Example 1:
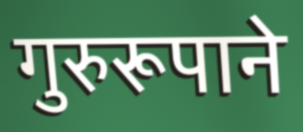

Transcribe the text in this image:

गुरुरूपाने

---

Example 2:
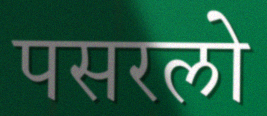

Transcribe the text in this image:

पसरलो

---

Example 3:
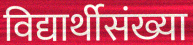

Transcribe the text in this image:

विद्यार्थीसंख्या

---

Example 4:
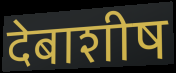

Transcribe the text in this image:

देबाशीष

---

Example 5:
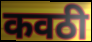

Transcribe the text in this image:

कवठी